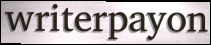
writerpayon